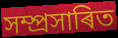
সম্প্ৰসাৰিত